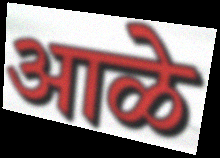
आळे